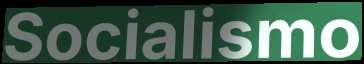
Socialismo